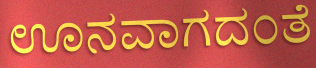
ಊನವಾಗದಂತೆ